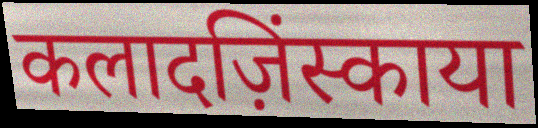
कलादज़िंस्काया